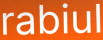
rabiul